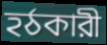
হঠকারী